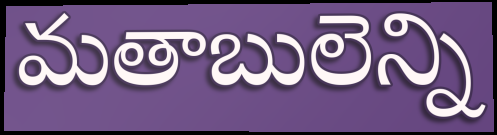
మతాబులెన్ని